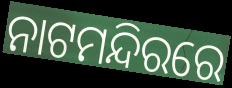
ନାଟମନ୍ଦିରରେ